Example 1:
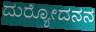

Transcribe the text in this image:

ದುರ್‍ಯೋದನನ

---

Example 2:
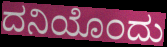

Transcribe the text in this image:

ದನಿಯೊಂದು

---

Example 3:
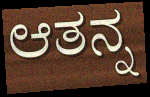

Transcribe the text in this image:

ಆತನ್ನ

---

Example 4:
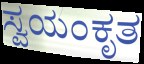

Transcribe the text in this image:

ಸ್ವಯಂಕೃತ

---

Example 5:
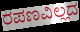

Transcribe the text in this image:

ರಪಣವಿಲ್ಲದ